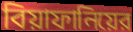
বিয়াফানিয়ের